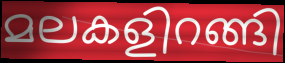
മലകളിറങ്ങി